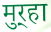
मुर्हा